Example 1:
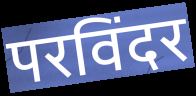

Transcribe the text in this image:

परविंदर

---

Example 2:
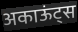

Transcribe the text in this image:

अकाऊंट्स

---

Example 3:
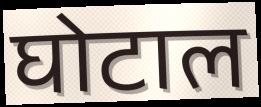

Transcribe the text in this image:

घोटाल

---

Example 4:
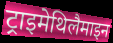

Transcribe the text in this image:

ट्राइमेथिलैमाइन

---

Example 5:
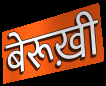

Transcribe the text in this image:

बेरूख़ी